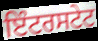
ਇੰਟਰਸਟੇਟ